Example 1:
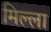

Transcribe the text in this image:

मिल्ला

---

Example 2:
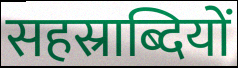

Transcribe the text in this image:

सहस्राब्दियों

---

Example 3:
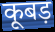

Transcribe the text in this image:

कूबड़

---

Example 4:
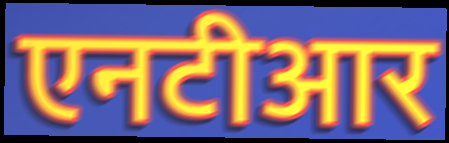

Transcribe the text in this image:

एनटीआर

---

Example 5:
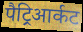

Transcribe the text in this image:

पैट्रिआर्कट